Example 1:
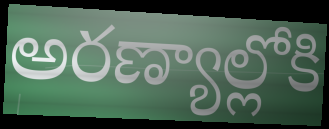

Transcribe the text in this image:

అరణ్యాల్లోకి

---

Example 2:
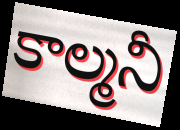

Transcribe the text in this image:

కాల్మనీ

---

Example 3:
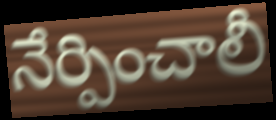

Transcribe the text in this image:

నేర్పించాలీ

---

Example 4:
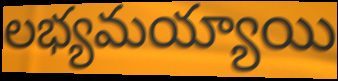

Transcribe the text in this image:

లభ్యమయ్యాయి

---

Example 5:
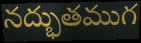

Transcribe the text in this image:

నద్భుతముగ